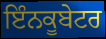
ਇੰਨਕੂਬੇਟਰ